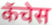
कॅचेस